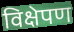
विक्षेपण